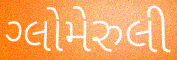
ગ્લોમેરુલી